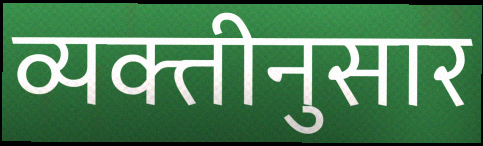
व्यक्तीनुसार